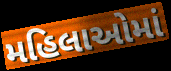
મહિલાઓમાં